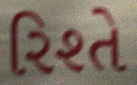
રિશ્તે